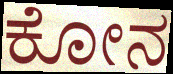
ಕೋನ